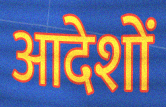
आदेशों